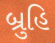
બ્રુહિ